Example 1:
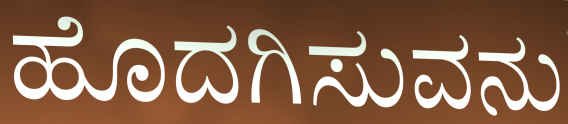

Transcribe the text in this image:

ಹೊದಗಿಸುವನು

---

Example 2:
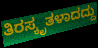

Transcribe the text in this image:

ತಿರಸ್ಕೃತಳಾದದ್ದು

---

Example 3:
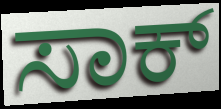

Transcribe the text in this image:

ಸಾಕ್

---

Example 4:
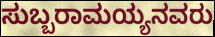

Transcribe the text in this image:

ಸುಬ್ಬರಾಮಯ್ಯನವರು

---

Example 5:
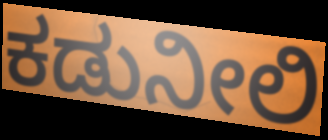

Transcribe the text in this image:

ಕಡುನೀಲಿ